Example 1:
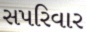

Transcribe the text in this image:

સપરિવાર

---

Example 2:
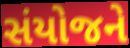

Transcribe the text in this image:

સંયોજને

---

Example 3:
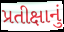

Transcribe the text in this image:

પ્રતીક્ષાનું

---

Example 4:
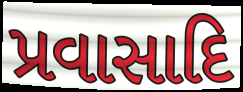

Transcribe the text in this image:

પ્રવાસાદિ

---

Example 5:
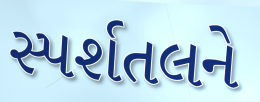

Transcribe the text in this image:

સ્પર્શતલને